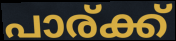
പാര്ക്ക്